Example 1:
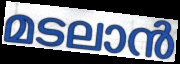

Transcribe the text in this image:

മടലാൻ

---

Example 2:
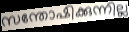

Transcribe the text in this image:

സന്തോഷിക്കുന്നില്ല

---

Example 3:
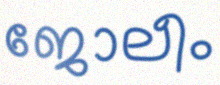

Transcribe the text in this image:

ജോലീം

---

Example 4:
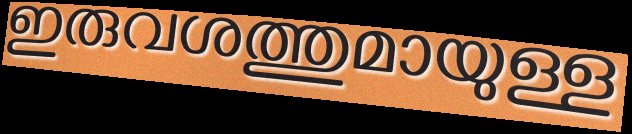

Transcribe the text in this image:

ഇരുവശത്തുമായുള്ള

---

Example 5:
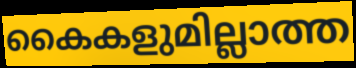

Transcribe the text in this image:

കൈകളുമില്ലാത്ത